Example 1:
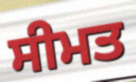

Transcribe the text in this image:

ਸੀਮਤ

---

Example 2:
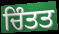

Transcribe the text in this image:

ਚਿੰਤਤ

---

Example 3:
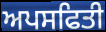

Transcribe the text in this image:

ਅਪਸਫਿਤੀ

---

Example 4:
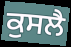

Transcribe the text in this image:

ਕੁਸਲੈ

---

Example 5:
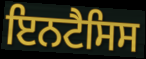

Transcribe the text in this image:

ਇਨਟੈਸਿਸ